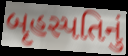
બૃહસ્પતિનું